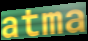
atma